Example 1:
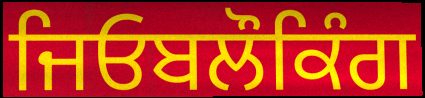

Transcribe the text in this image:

ਜਿਓਬਲੌਕਿੰਗ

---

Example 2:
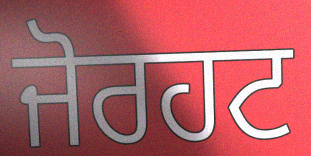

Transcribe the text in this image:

ਜੋਰਹਟ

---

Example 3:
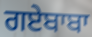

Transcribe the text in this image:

ਗਏਬਾਬਾ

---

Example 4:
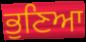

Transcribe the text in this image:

ਭੁਣਿਆ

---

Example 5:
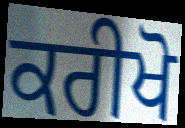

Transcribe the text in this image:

ਕਰੀਖੋ